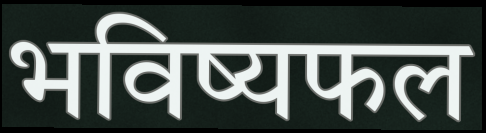
भविष्‍यफल